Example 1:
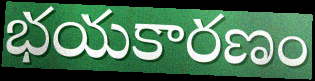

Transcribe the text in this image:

భయకారణం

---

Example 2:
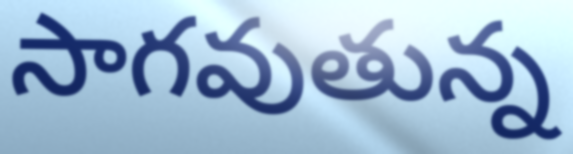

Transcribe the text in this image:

సాగవుతున్న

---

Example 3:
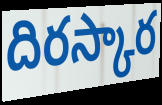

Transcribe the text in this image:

దిరస్కార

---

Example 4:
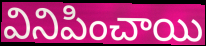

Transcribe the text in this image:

వినిపించాయి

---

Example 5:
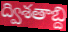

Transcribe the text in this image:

ద్విశతాబ్ది